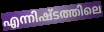
എന്നിഷ്ടത്തിലെ